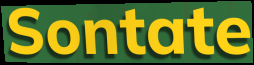
Sontate